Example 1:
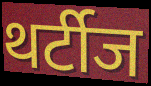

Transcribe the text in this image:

थर्टीज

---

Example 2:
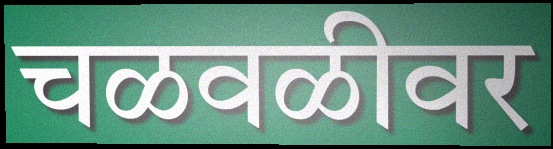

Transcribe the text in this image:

चळवळीवर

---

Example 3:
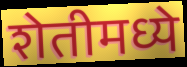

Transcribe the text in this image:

शेतीमध्ये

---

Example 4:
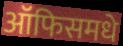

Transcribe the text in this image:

ऑफिसमधे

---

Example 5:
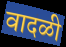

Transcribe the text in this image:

वादळी